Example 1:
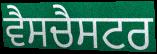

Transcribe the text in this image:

ਵੈਸਚੈਸਟਰ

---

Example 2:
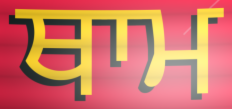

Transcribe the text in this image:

ਥਾਮ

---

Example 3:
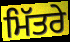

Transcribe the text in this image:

ਮਿੱਤਰੇ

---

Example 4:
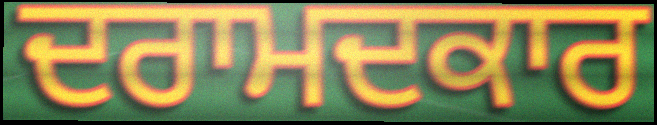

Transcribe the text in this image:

ਦਰਾਮਦਕਾਰ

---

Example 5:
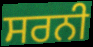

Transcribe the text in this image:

ਸਰਨੀ